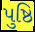
પુષ્ઠિ